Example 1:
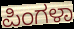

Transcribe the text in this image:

ಪಿಂಗಳಾ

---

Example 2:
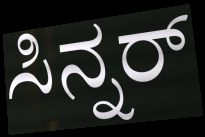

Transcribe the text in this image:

ಸಿನ್ನರ್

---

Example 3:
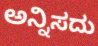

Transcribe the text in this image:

ಅನ್ನಿಸದು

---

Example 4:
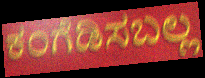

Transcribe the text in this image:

ಕಂಗೆಡಿಸಬಲ್ಲ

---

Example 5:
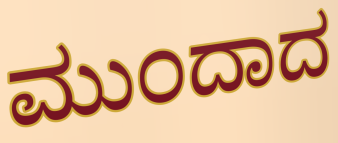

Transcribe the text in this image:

ಮುಂದಾದ